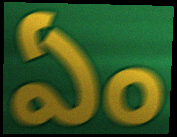
ఏం